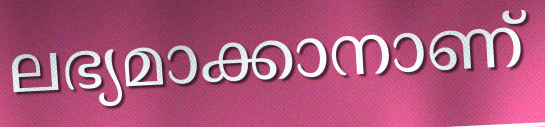
ലഭ്യമാക്കാനാണ്